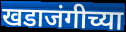
खडाजंगीच्या